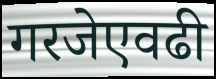
गरजेएवढी